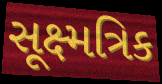
સૂક્ષ્મત્રિક